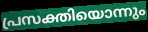
പ്രസക്തിയൊന്നും